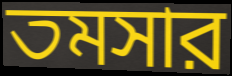
তমসার